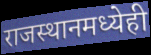
राजस्थानमध्येही